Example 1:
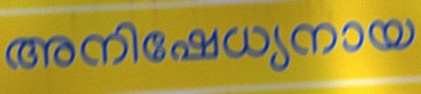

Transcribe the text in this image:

അനിഷേധ്യനായ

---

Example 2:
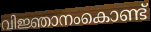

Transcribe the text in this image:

വിജ്ഞാനംകൊണ്ട്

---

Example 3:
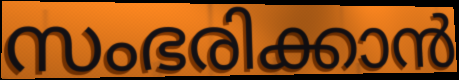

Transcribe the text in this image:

സംഭരിക്കാൻ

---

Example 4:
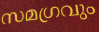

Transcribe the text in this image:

സമഗ്രവും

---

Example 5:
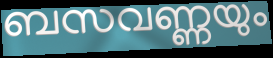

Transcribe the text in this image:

ബസവണ്ണയും